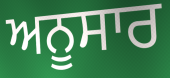
ਅਨੂਸਾਰ